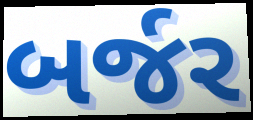
બર્જર